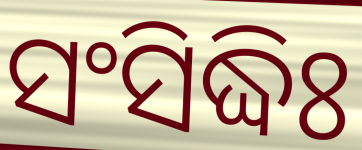
ସଂସିଦ୍ଧିଃ